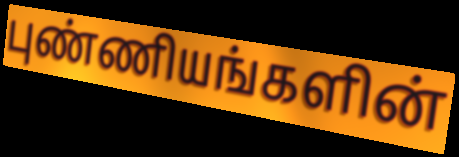
புண்ணியங்களின்